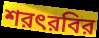
শরৎরবির